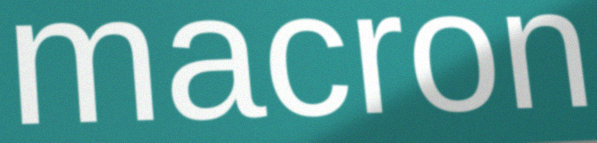
macron